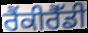
ਰੈਂਕੀਰੈੱਡੀ